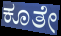
ಕೂತೇ